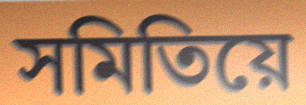
সমিতিয়ে